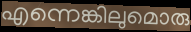
എന്നെങ്കിലുമൊരു